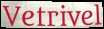
Vetrivel